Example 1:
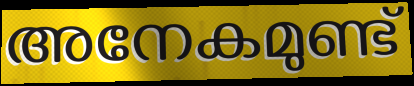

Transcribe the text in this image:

അനേകമുണ്ട്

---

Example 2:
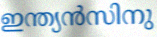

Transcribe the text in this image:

ഇന്ത്യൻസിനു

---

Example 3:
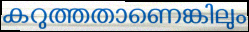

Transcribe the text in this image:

കറുത്തതാണെങ്കിലും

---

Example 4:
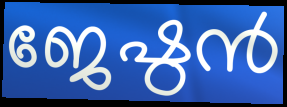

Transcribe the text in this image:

ജേഷ്ഠൻ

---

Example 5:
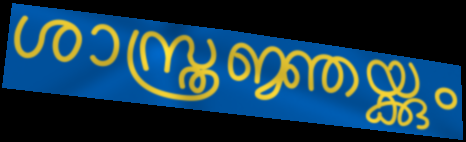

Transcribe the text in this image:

ശാസ്ത്രജ്ഞയ്ക്കും